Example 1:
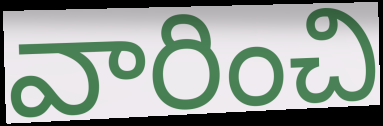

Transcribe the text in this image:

వారించి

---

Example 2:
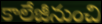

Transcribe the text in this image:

కాలేజీనుంచి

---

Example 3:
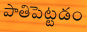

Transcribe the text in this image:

పాతిపెట్టడం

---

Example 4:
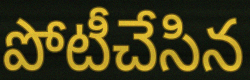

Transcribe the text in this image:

పోటీచేసిన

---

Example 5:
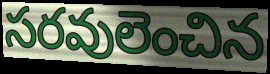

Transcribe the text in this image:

సరవులెంచిన